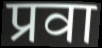
प्रवा